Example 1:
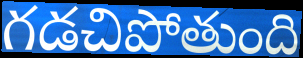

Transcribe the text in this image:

గడచిపోతుంది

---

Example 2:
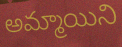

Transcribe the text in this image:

అమ్మాయిని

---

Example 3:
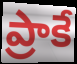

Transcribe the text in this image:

ప్రాకే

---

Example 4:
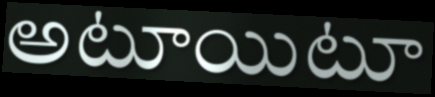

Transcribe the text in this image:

అటూయిటూ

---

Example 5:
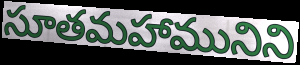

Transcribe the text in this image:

సూతమహామునిని